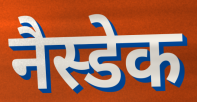
नैस्डेक